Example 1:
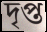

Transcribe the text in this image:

দৃপ্ত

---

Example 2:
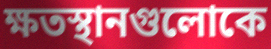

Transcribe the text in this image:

ক্ষতস্থানগুলোকে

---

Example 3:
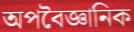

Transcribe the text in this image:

অপবৈজ্ঞানিক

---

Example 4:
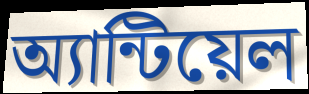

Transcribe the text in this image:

অ্যান্টিয়েল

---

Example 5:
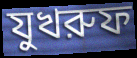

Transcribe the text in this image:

যুখরুফ